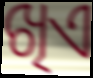
ଖିଏ